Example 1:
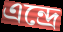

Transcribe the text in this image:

এন্দ্ৰে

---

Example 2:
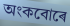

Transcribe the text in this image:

অংকবোৰে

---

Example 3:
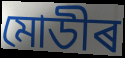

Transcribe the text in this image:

মোডীৰ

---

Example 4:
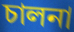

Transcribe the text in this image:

চালনা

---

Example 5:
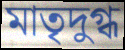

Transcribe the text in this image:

মাতৃদুগ্ধ